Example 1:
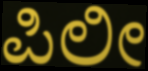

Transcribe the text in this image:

ಪಿಲೀ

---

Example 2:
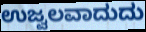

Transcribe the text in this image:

ಉಜ್ವಲವಾದುದು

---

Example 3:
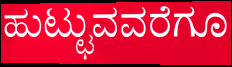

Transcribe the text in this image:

ಹುಟ್ಟುವವರೆಗೂ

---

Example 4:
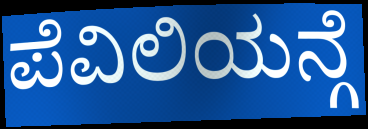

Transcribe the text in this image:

ಪೆವಿಲಿಯನ್ಗೆ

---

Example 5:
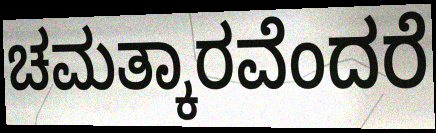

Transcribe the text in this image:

ಚಮತ್ಕಾರವೆಂದರೆ